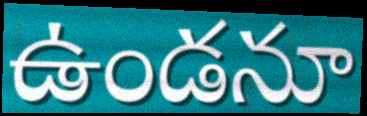
ఉండనూ